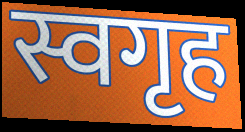
स्वगृह